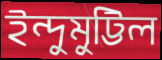
ইন্দুমুট্টিল